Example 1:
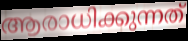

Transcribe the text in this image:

ആരാധിക്കുന്നത്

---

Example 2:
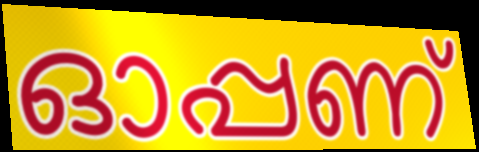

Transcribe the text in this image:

ഓപ്പണ്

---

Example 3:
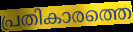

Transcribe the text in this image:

പ്രതികാരത്തെ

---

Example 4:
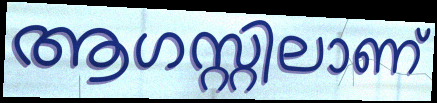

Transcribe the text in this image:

ആഗസ്റ്റിലാണ്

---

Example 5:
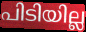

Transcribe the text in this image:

പിടിയില്ല